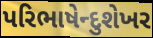
પરિભાષેન્દુશેખર